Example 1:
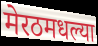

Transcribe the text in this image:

मेरठमधल्या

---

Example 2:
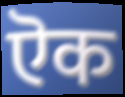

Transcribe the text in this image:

ऎक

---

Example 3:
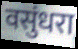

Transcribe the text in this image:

वसुंधरा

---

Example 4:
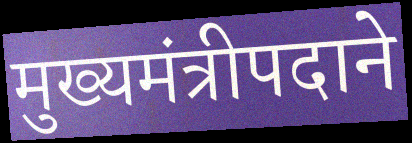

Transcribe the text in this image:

मुख्यमंत्रीपदाने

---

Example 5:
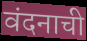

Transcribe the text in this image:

वंदनाची